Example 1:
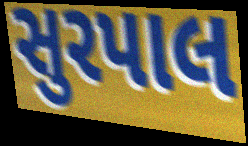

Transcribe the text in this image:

સુરપાલ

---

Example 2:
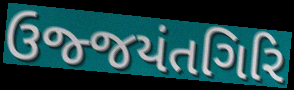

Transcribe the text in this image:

ઉજ્જયંતગિરિ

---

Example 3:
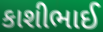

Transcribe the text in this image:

કાશીભાઈ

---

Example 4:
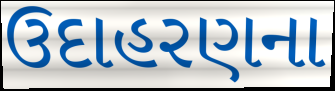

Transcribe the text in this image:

ઉદાહરણના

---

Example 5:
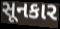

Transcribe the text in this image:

સૂનકાર